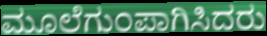
ಮೂಲೆಗುಂಪಾಗಿಸಿದರು